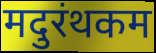
मदुरंथकम